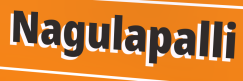
Nagulapalli